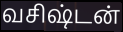
வசிஷ்டன்